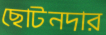
ছোটনদার